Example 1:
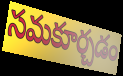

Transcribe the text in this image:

సమకూర్చడం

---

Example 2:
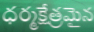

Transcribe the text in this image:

ధర్మక్షేత్రమైన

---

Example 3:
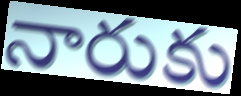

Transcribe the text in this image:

నారుకు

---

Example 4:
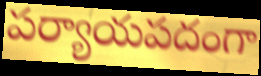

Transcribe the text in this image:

పర్యాయపదంగా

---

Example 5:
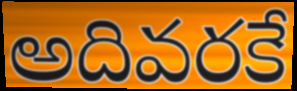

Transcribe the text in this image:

అదివరకే